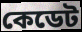
কেডেট